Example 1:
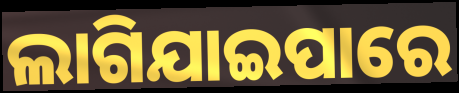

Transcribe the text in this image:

ଲାଗିଯାଇପାରେ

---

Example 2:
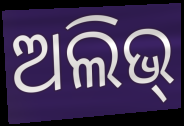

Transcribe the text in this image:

ଅଲିଭ୍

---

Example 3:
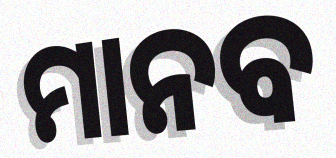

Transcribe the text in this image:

ମାନବ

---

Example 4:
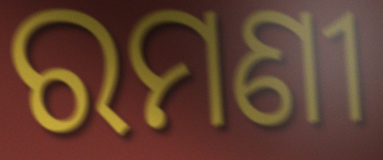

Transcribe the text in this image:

ରମଣୀ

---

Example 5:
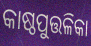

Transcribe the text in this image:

କାଷ୍ଠପୁତ୍ତଳିକା